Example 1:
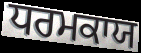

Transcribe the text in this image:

ਧਰਮਕਾਯ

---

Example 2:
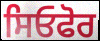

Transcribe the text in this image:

ਸਿਓਫੋਰ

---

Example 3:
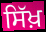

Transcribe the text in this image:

ਸਿੱਖ਼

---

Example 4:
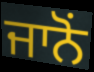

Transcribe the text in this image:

ਜਾਨੋਂ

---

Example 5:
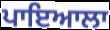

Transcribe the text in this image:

ਪਾਇਆਲਾ